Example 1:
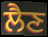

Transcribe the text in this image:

ਲੈਣ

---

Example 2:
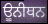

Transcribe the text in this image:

ਊਨੀਥਨ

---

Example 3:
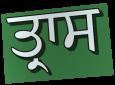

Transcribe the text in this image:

ਤ੍ਰਾਸ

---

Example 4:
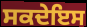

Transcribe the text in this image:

ਸਕਦੇਇਸ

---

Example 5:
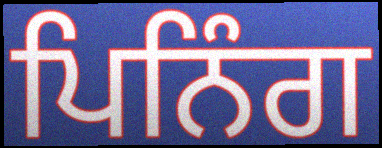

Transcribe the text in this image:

ਪਿਨਿੰਗ